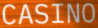
CASINO